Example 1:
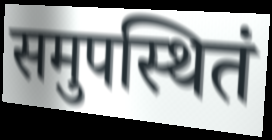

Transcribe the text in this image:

समुपस्थितं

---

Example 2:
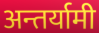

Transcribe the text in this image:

अन्‍तर्यामी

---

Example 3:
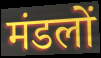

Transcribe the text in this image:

मंडलों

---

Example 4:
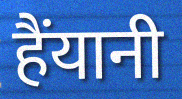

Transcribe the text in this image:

हैंयानी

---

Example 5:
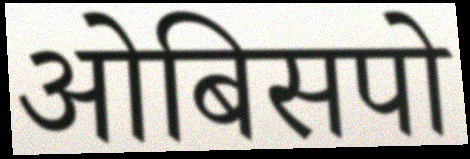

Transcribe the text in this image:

ओबिसपो